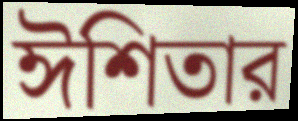
ঈশিতার